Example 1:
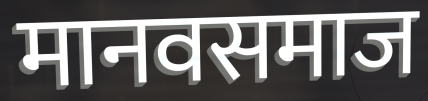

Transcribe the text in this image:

मानवसमाज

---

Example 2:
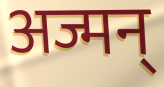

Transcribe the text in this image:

अज्मन्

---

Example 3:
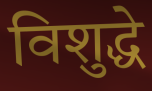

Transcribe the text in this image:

विशुद्धे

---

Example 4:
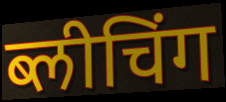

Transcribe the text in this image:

ब्लीचिंग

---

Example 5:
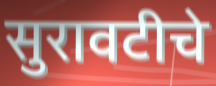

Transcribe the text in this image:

सुरावटीचे